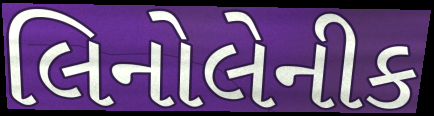
લિનોલેનીક